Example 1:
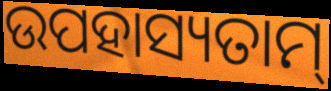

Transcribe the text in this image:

ଉପହାସ୍ୟତାମ୍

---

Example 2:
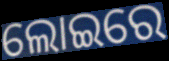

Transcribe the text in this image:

ଲୋଇରେ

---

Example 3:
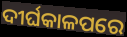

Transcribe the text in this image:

ଦୀର୍ଘକାଳପରେ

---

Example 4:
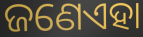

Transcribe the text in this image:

ଜଣେଏହା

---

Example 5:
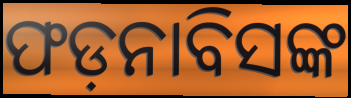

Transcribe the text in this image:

ଫଡ଼ନାବିସଙ୍କ